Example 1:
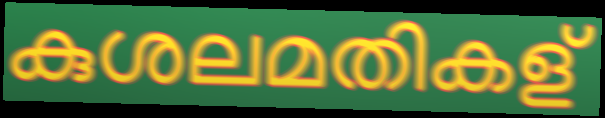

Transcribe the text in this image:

കുശലമതികള്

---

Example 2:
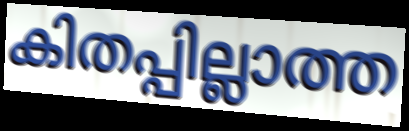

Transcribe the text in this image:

കിതപ്പില്ലാത്ത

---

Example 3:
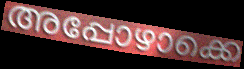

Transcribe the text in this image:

അപ്പോഴാക്കെ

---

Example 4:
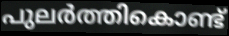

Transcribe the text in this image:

പുലർത്തികൊണ്ട്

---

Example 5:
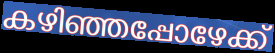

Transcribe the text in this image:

കഴിഞ്ഞപ്പോഴേക്ക്